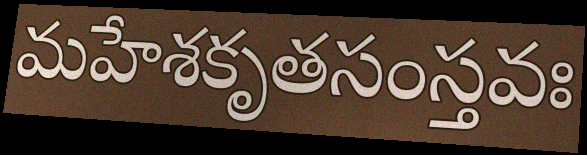
మహేశకృతసంస్తవః